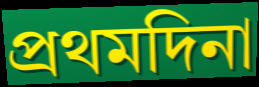
প্ৰথমদিনা